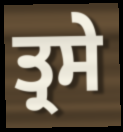
ਤ੍ਰਸੇ